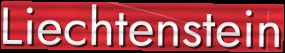
Liechtenstein